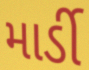
માર્ડી